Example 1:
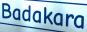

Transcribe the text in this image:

Badakara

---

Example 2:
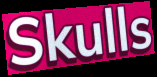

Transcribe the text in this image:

Skulls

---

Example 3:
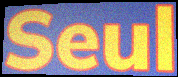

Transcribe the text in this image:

Seul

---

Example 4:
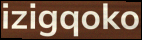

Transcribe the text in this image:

izigqoko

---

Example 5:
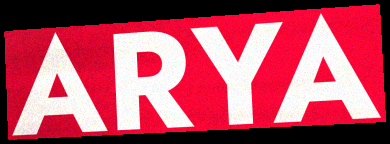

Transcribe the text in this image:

ARYA